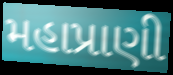
મહાપ્રાણી